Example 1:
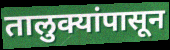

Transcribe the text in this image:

तालुक्यांपासून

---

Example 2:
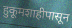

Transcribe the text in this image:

हुकूमशाहीपासून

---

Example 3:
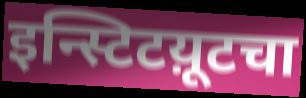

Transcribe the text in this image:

इन्स्टिटय़ूटचा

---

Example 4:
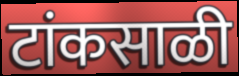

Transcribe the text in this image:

टांकसाळी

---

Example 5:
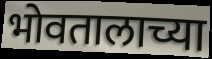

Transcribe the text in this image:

भोवतालाच्या